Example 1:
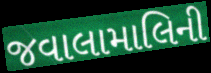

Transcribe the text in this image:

જવાલામાલિની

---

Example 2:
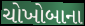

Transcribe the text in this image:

ચોખોબાના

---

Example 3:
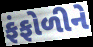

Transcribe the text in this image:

ફંફોળીને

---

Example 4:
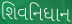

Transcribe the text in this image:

શિવનિધાન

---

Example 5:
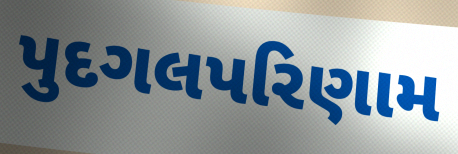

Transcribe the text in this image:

પુદગલપરિણામ